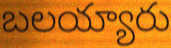
బలయ్యారు